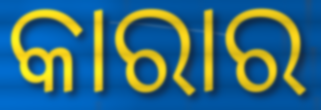
କାରାର